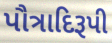
પૌત્રાદિરૂપી